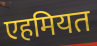
एहमियत